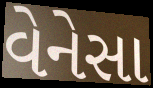
વેનેસા